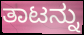
ತಾಟನ್ನು